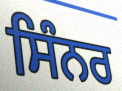
ਸਿੰਨਰ